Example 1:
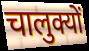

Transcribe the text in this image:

चालुक्यों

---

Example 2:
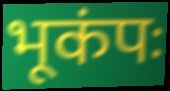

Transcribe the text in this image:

भूकंपः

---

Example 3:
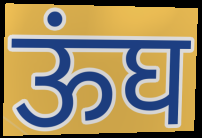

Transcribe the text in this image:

ऊंघ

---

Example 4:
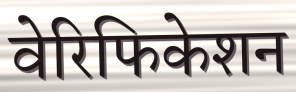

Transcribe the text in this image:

वेरिफिकेशन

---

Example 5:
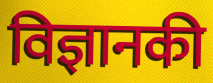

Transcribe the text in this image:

विज्ञानकी